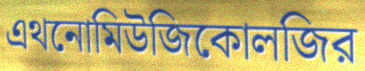
এথনোমিউজিকোলজির